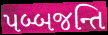
પબ્બજન્તિ